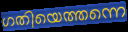
ഗതിയെത്തന്നെ